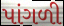
પાંગળી